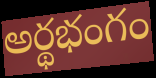
అర్థభంగం